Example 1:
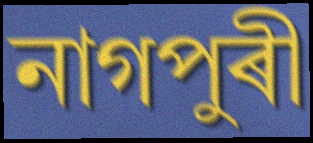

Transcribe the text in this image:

নাগপুৰী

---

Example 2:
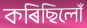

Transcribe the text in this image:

কৰিছিলোঁ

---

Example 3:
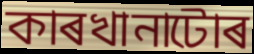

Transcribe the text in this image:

কাৰখানাটোৰ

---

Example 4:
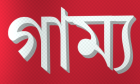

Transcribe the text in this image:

গাম্য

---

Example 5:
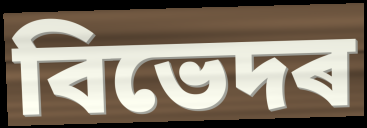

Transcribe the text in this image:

বিভেদৰ